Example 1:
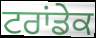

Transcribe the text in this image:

ਟਰਾਂਡੇਕ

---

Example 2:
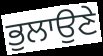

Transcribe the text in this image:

ਭੁਲਾਉਣੇ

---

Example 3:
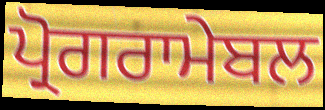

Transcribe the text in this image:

ਪ੍ਰੋਗਰਾਮੇਬਲ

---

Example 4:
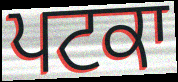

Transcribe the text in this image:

ਪਟਕਾ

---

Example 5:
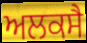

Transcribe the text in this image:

ਅਲਕਸੈ